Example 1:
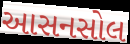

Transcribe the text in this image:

આસનસોલ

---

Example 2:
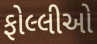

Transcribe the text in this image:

ફોલ્લીઓ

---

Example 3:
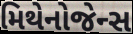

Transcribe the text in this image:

મિથેનોજેન્સ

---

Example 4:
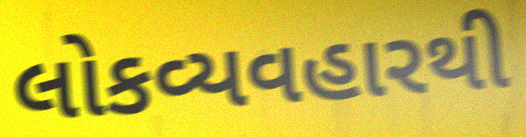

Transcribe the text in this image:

લોકવ્યવહારથી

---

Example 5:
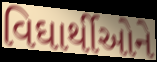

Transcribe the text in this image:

વિઘાર્થીઓને